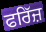
ਫਰਿੱਜ਼